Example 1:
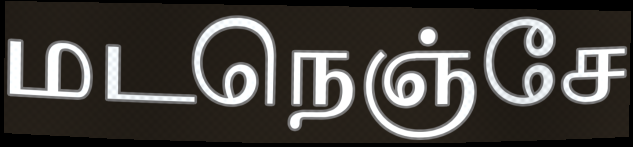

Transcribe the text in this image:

மடநெஞ்சே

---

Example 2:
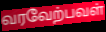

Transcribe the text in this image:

வரவேற்பவள்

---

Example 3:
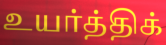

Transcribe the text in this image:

உயர்த்திக்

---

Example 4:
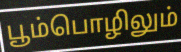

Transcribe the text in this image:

பூம்பொழிலும்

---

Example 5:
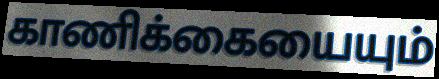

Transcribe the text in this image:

காணிக்கையையும்